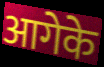
आगेके